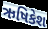
ઋષિકેશ